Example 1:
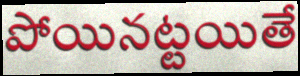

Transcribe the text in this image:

పోయినట్టయితే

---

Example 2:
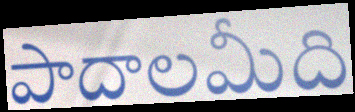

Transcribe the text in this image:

పాదాలమీది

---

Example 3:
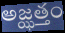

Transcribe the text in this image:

అజ్ఝత్తం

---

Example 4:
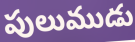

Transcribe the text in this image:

పులుముడు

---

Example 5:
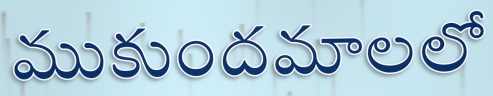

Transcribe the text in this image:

ముకుందమాలలో